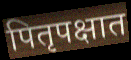
पितृपक्षात